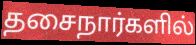
தசைநார்களில்